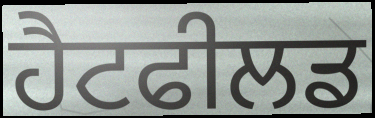
ਹੈਟਫੀਲਡ